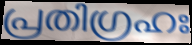
പ്രതിഗ്രഹഃ